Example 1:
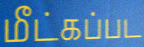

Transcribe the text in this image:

மீட்கப்பட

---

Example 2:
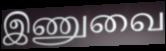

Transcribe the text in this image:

இணுவை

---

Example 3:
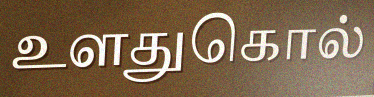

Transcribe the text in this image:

உளதுகொல்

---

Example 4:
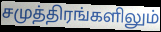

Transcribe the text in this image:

சமுத்திரங்களிலும்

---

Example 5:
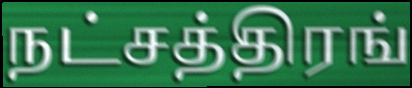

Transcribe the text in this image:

நட்சத்திரங்